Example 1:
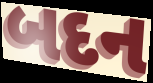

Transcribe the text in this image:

બદન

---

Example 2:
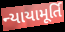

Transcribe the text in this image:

ન્યાયામૂર્તિ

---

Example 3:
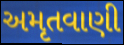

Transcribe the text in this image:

અમૃતવાણી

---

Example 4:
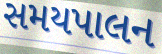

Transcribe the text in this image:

સમયપાલન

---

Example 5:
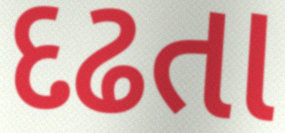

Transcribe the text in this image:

દઢતા